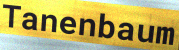
Tanenbaum